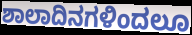
ಶಾಲಾದಿನಗಳಿಂದಲೂ